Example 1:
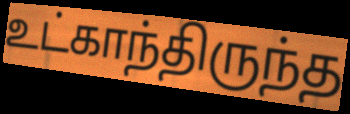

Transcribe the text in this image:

உட்காந்திருந்த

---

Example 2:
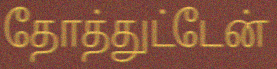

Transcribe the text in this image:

தோத்துட்டேன்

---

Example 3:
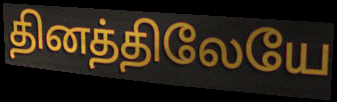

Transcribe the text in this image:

தினத்திலேயே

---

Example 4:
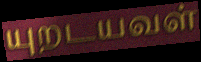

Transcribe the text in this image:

யுறடயவள்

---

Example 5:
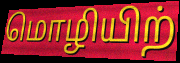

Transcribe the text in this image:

மொழியிற்